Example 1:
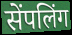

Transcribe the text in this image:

सेंपलिंग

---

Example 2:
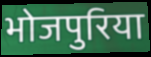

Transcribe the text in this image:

भोजपुरिया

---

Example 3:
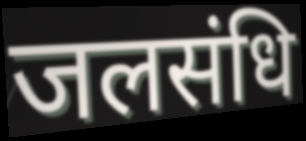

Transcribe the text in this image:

जलसंधि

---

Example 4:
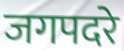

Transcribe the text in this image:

जगपदरे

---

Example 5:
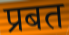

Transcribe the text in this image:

प्रबत